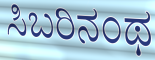
ಸಿಬರಿನಂಥ